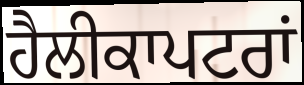
ਹੈਲੀਕਾਪਟਰਾਂ